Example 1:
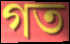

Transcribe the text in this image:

গত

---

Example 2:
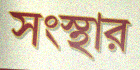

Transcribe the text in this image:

সংস্থার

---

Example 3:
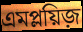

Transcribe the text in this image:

এমপ্লয়িজ়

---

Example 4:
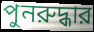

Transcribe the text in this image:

পুনরুদ্ধার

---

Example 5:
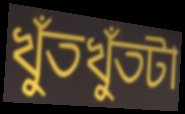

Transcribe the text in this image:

খুঁতখুঁতটা